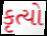
કૃત્યો